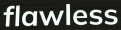
flawless